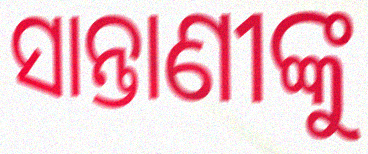
ସାନ୍ତାଣୀଙ୍କୁ